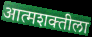
आत्मशक्तीला